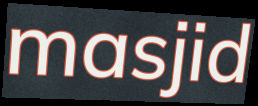
masjid